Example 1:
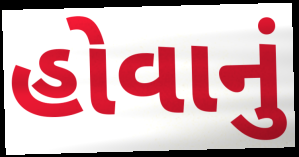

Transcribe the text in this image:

હોવાનું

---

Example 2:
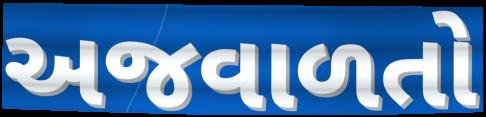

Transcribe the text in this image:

અજવાળતો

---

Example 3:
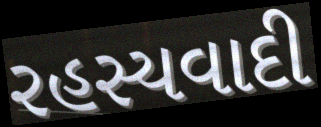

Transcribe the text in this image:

રહસ્યવાદી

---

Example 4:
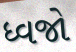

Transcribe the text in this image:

ધ્વજો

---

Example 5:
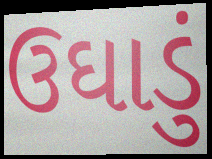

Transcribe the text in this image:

ઉઘાડું